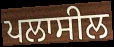
ਪਲਾਸੀਲ